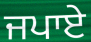
ਜਪਾਏ